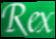
Rex